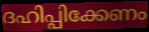
ദഹിപ്പിക്കേണം